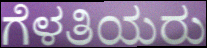
ಗೆಳತಿಯರು